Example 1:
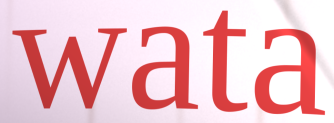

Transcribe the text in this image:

wata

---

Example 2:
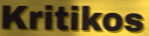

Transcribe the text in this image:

Kritikos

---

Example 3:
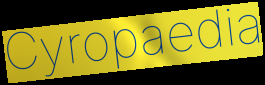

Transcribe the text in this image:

Cyropaedia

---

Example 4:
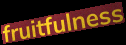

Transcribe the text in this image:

fruitfulness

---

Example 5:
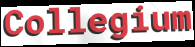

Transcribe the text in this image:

Collegium